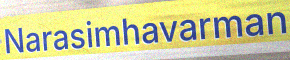
Narasimhavarman